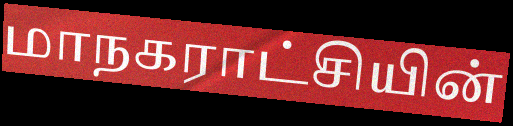
மாநகராட்சியின்